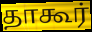
தாகூர்